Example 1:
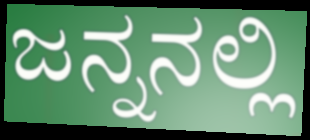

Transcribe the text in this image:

ಜನ್ನನಲ್ಲಿ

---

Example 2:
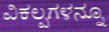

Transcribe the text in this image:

ವಿಕಲ್ಪಗಳನ್ನೂ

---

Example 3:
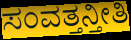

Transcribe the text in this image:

ಸಂವತ್ತನ್ತೀತಿ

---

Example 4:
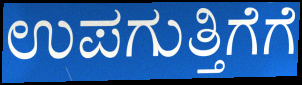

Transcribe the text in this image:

ಉಪಗುತ್ತಿಗೆಗೆ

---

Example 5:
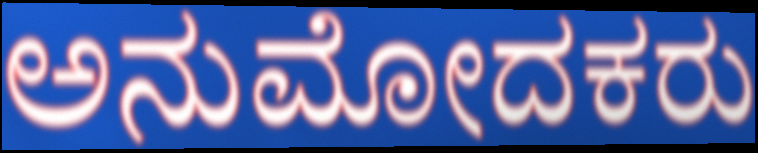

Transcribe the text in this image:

ಅನುಮೋದಕರು